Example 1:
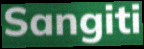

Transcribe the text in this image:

Sangiti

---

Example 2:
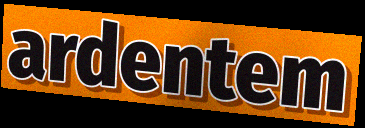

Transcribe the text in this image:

ardentem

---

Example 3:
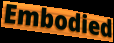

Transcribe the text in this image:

Embodied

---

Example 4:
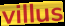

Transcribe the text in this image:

villus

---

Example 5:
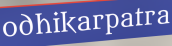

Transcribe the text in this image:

odhikarpatra